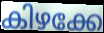
കിഴക്കേ